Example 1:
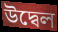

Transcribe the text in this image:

উদ্বেল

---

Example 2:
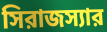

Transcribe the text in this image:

সিরাজস্যার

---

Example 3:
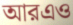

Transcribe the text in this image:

আরএও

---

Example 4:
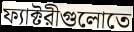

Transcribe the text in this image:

ফ্যাক্টরীগুলোতে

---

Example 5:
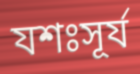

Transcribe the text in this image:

যশঃসূর্য